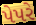
પેપરે